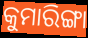
କୁମାରିଙ୍ଗା